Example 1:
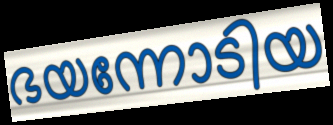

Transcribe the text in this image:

ഭയന്നോടിയ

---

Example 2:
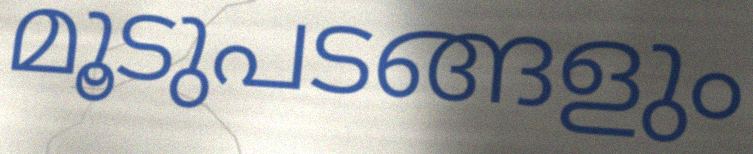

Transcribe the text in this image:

മൂടുപടങ്ങളും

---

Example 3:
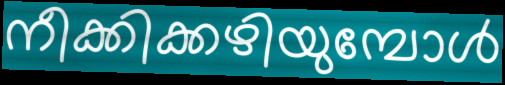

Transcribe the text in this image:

നീക്കിക്കഴിയുമ്പോൾ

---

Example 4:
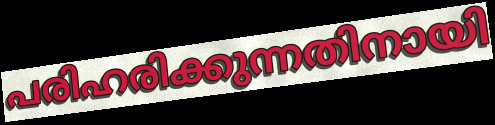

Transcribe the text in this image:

പരിഹരിക്കുന്നതിനായി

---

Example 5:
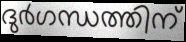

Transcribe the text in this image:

ദുർഗന്ധത്തിന്